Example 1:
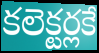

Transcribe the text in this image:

కలెక్టర్లకే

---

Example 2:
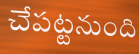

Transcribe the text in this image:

చేపట్టనుంది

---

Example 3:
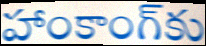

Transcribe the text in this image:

హాంకాంగ్‌కు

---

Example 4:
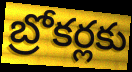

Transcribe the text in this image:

బ్రోకర్లకు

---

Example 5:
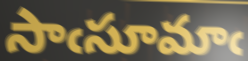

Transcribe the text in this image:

సాఁసూమాఁ